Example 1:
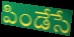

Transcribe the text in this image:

పిండేసే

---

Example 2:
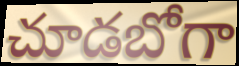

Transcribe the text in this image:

చూడబోగా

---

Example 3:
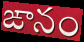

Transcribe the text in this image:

ఙానం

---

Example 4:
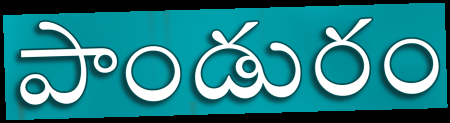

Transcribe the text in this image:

పాండురం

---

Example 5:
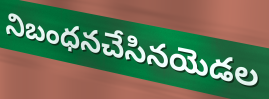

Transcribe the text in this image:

నిబంధనచేసినయెడల